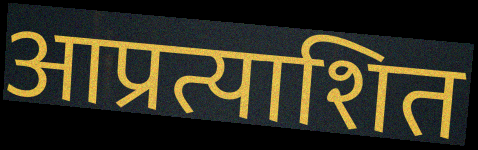
आप्रत्याशित